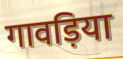
गावड़िया